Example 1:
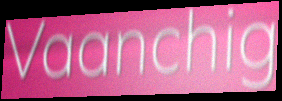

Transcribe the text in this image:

Vaanchig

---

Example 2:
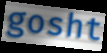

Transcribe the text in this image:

gosht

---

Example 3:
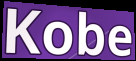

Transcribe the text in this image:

Kobe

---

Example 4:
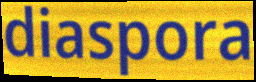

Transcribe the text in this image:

diaspora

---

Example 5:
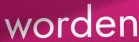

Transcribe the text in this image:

worden